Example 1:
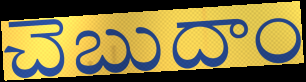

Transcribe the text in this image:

చెబుదాం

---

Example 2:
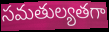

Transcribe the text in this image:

సమతుల్యతగా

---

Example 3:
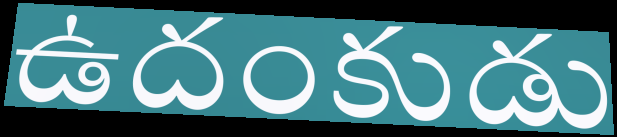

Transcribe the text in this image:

ఉదంకుడు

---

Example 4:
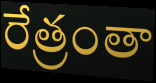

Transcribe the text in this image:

రేత్రంతా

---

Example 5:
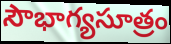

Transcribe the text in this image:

సౌభాగ్యసూత్రం